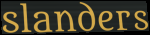
slanders